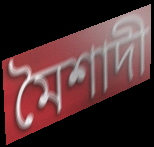
মৈশাদী